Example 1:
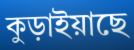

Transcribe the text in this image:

কুড়াইয়াছে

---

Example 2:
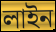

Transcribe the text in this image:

লাইন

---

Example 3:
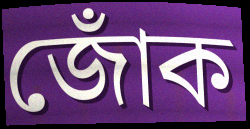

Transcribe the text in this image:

জোঁক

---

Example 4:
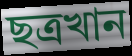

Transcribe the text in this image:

ছত্রখান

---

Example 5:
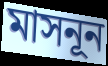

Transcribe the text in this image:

মাসনূন